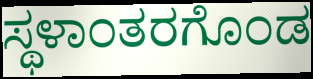
ಸ್ಥಳಾಂತರಗೊಂಡ